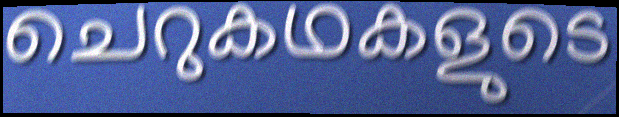
ചെറുകഥകളുടെ